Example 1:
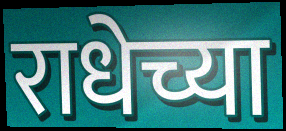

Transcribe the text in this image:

राधेच्या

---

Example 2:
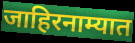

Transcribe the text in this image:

जाहिरनाम्यात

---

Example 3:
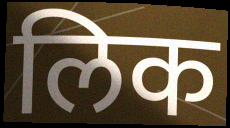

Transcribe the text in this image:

लिक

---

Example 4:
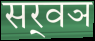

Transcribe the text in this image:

सर्वञ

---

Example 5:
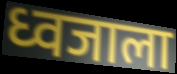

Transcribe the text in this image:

ध्वजाला